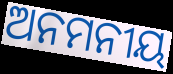
ଅନମନୀୟ